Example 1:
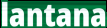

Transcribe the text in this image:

lantana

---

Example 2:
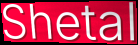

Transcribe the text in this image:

Shetal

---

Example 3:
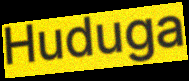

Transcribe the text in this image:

Huduga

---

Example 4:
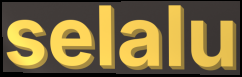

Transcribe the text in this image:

selalu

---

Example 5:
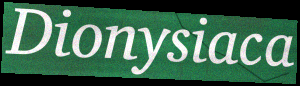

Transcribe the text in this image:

Dionysiaca